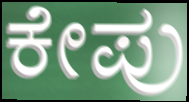
ಕೇಪು